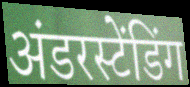
अंडरस्टेंडिंग